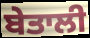
ਬੇਤਾਲੀ